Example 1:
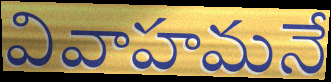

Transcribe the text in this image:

వివాహమనే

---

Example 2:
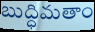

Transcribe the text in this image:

బుద్ధిమతాం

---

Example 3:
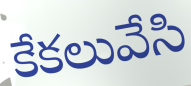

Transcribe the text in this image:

కేకలువేసి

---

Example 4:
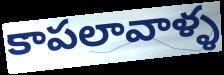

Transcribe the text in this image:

కాపలావాళ్ళ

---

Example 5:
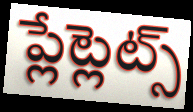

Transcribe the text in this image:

ప్లేట్లెట్స్